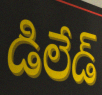
డిలేడ్